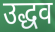
उद्धव